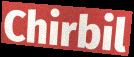
Chirbil